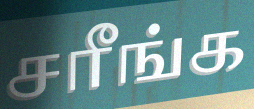
சரீங்க